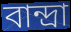
বান্দ্রা